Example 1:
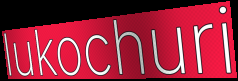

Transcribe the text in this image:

lukochuri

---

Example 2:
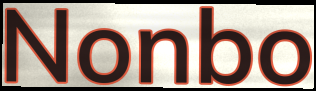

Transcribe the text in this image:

Nonbo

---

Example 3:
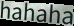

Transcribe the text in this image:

hahaha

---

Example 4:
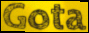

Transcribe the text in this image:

Gota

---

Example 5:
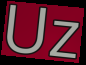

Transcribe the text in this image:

Uz